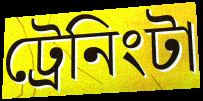
ট্রেনিংটা